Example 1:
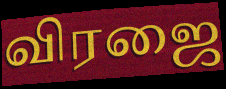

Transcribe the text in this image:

விரஜை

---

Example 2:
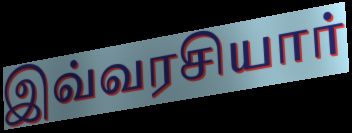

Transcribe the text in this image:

இவ்வரசியார்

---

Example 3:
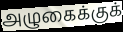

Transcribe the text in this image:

அழுகைக்குக்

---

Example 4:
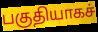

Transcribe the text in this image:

பகுதியாகச்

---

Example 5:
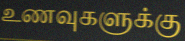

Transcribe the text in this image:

உணவுகளுக்கு